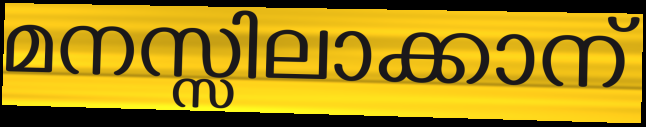
മനസ്സിലാക്കാന്